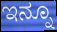
ಇನ್ನೂ